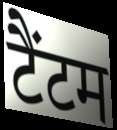
टैंटम